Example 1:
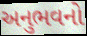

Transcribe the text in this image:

અનુભવનો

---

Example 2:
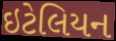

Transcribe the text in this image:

ઇટેલિયન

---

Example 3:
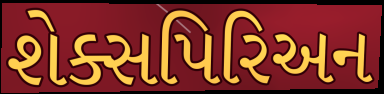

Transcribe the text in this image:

શેક્સપિરિઅન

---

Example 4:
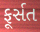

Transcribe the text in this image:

ફૂર્સત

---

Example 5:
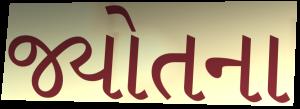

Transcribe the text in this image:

જ્યોતના